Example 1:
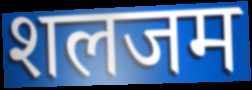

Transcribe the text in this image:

शलजम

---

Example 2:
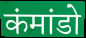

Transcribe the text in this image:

कंमांडो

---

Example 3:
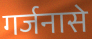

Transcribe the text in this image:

गर्जनासे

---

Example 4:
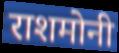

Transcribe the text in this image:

राशमोनी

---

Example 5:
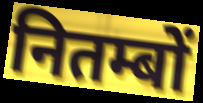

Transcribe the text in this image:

नितम्बों